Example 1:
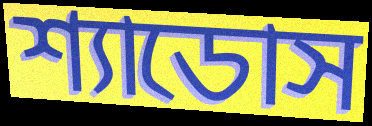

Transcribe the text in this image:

শ্যাডোস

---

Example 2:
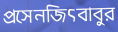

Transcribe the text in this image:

প্রসেনজিৎবাবুর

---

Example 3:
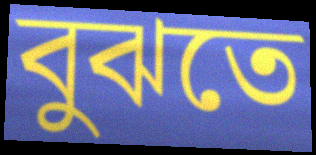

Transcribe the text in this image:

বুঝতে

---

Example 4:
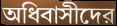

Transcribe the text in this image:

অধিবাসীদের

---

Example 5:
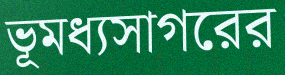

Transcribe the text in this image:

ভূমধ্যসাগরের